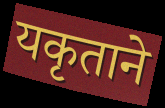
यकृताने